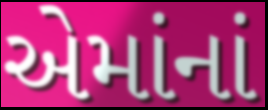
એમાંનાં